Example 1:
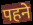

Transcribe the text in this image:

पहने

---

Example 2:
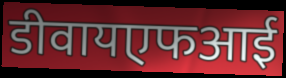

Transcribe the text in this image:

डीवायएफआई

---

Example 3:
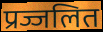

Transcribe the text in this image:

प्रज्जलित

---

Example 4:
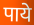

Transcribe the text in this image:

पाये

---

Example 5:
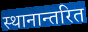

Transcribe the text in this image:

स्थानान्तरित